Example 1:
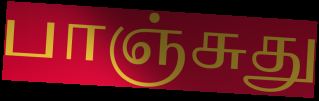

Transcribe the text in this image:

பாஞ்சுது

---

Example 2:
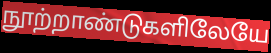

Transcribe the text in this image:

நூற்றாண்டுகளிலேயே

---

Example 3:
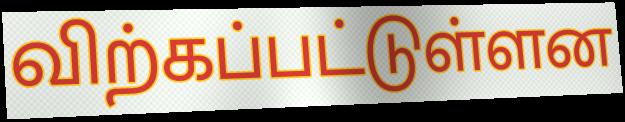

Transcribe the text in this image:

விற்கப்பட்டுள்ளன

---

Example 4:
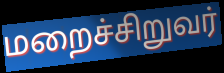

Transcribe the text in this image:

மறைச்சிறுவர்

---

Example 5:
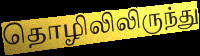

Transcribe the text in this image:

தொழிலிலிருந்து